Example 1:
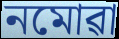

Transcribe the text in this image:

নমোৱা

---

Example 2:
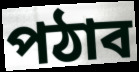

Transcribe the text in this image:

পঠাব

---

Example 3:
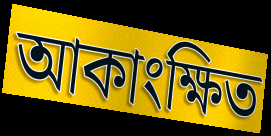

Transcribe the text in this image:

আকাংক্ষিত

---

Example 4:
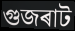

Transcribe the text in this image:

গুজৰাট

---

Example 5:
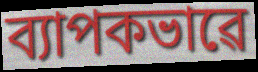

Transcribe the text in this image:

ব্যাপকভাৱে